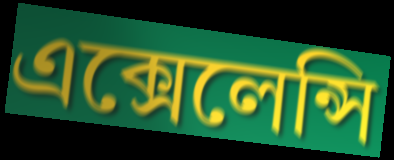
এক্সেলেন্সি